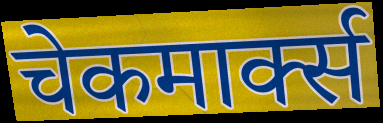
चेकमार्क्स